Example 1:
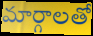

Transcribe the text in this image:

మార్గాలతో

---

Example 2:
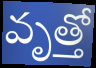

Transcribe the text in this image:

వృత్తో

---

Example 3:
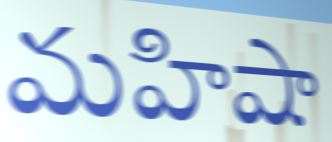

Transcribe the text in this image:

మహిషా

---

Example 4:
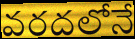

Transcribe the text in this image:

వరదలోనే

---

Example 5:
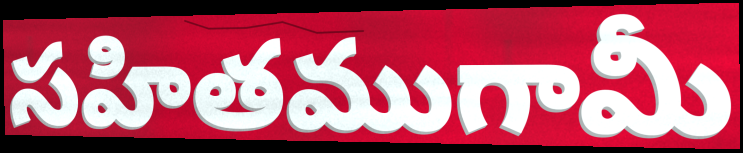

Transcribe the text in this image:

సహితముగామీ